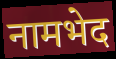
नामभेद